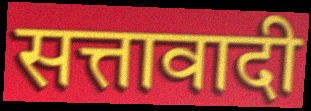
सत्तावादी